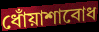
ধোঁয়াশাবোধ